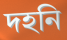
দহনি